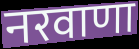
नरवाणा